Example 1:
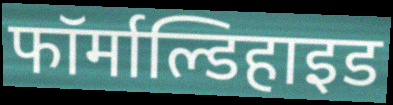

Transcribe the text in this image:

फॉर्माल्डिहाइड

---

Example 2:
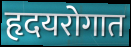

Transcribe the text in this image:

हृदयरोगात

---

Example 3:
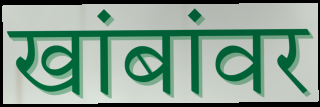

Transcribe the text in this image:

खांबांवर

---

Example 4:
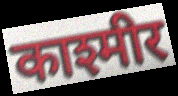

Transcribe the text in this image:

काश्मीर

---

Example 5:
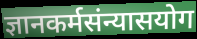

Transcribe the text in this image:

ज्ञानकर्मसंन्यासयोग